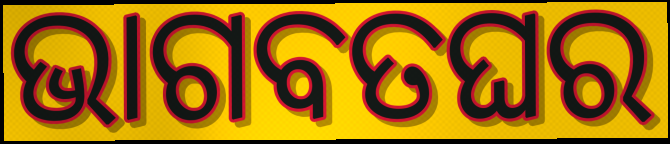
ଭାଗବତଘର